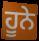
ਹੂਨੇ